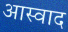
आस्वाद